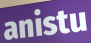
anistu